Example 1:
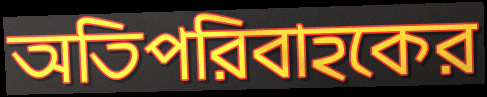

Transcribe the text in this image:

অতিপরিবাহকের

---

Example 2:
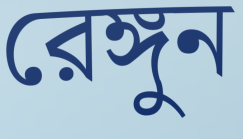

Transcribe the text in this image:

রেঙ্গুন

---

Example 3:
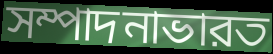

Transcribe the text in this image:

সম্পাদনাভারত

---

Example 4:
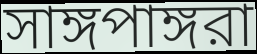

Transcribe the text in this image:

সাঙ্গপাঙ্গরা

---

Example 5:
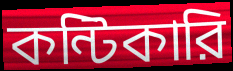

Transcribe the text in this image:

কন্টিকারি